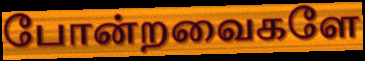
போன்றவைகளே